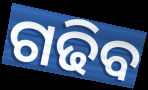
ଗଢିବ